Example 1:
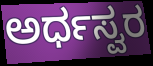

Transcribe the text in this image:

ಅರ್ಧಸ್ವರ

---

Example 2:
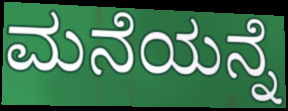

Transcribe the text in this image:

ಮನೆಯನ್ನೆ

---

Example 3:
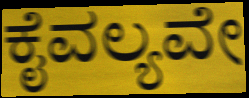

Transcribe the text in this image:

ಕೈವಲ್ಯವೇ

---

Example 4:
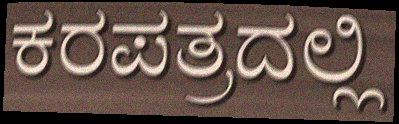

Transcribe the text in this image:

ಕರಪತ್ರದಲ್ಲಿ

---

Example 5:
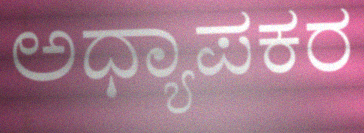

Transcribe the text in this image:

ಅಧ್ಯಾಪಕರ